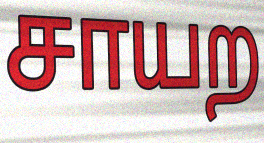
சாயற